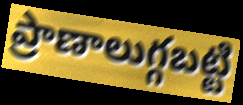
ప్రాణాలుగ్గబట్టి